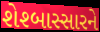
શેશ્બાસ્સારને